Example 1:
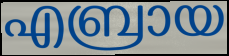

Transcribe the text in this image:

എബ്രായ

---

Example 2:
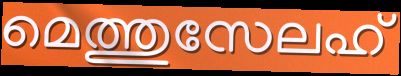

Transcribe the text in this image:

മെത്തുസേലഹ്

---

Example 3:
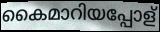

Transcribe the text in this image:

കൈമാറിയപ്പോള്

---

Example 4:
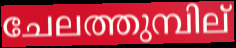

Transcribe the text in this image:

ചേലത്തുമ്പില്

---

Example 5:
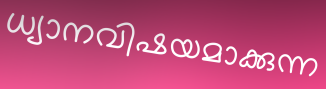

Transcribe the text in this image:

ധ്യാനവിഷയമാക്കുന്ന